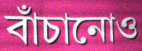
বাঁচানোও